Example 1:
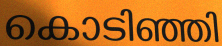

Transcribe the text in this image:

കൊടിഞ്ഞി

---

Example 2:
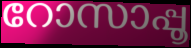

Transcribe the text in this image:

റോസാപ്പൂ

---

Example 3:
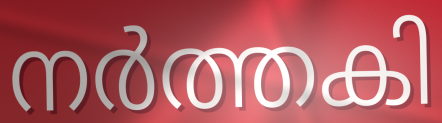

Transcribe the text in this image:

നർത്തകി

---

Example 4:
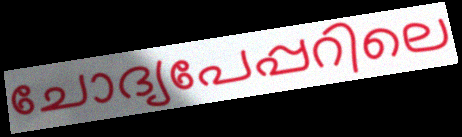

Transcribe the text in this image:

ചോദ്യപേപ്പറിലെ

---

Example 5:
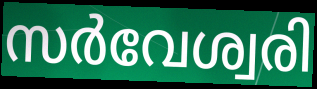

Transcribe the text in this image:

സർവേശ്വരി